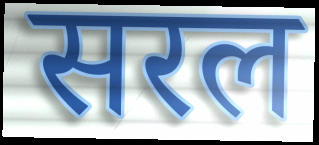
सरल